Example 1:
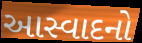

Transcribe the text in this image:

આસ્વાદનો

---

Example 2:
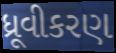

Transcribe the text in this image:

ધ્રૂવીકરણ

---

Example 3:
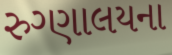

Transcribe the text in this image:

રુગ્ણાલયના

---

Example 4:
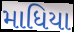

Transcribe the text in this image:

માધિયા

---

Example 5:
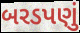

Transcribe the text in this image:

બરડપણું